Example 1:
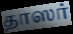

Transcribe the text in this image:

தாஸர்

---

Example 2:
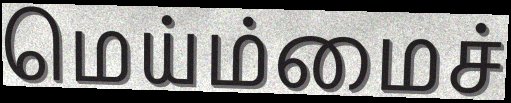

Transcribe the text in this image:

மெய்ம்மைச்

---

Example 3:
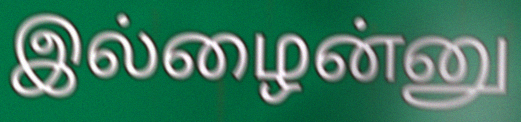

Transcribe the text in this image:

இல்ழைன்னு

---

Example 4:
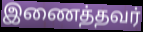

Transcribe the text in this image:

இணைத்தவர்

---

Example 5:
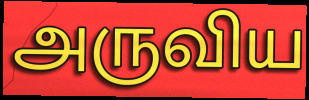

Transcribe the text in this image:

அருவிய